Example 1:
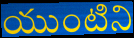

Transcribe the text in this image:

యుంటిని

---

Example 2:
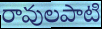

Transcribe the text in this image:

రావులపాటి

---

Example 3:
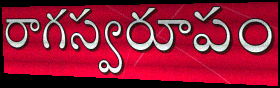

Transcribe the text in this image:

రాగస్వరూపం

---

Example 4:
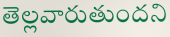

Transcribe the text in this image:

తెల్లవారుతుందని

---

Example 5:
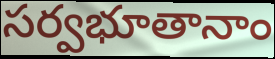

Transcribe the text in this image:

సర్వభూతానాం